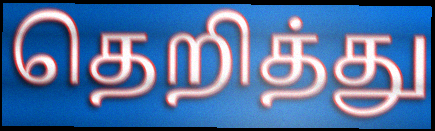
தெறித்து